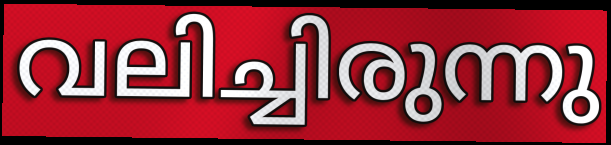
വലിച്ചിരുന്നു